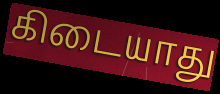
கிடையாது